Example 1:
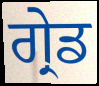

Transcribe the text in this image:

ਗ੍ਰੇਡ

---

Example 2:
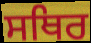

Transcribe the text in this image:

ਸਥਿਰ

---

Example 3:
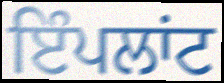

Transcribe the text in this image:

ਇੰਪਲਾਂਟ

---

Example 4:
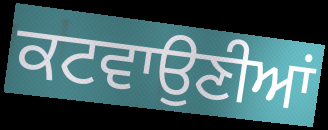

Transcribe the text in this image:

ਕਟਵਾਉਣੀਆਂ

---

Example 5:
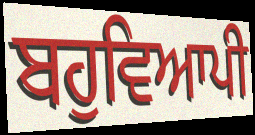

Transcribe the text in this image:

ਬਹੁਵਿਆਪੀ